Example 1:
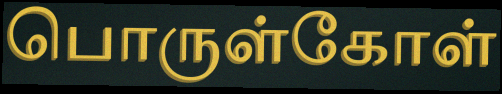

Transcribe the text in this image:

பொருள்கோள்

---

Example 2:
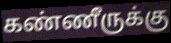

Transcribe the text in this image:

கண்ணீருக்கு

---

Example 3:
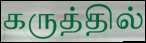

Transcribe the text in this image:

கருத்தில்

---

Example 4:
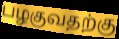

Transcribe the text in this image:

பழகுவதற்கு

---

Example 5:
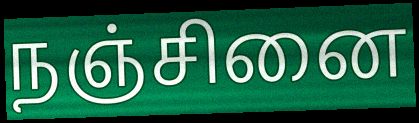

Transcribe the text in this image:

நஞ்சினை